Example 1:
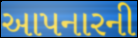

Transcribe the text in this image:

આપનારની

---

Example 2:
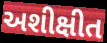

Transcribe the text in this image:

અશીક્ષીત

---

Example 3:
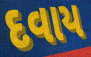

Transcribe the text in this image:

દવાય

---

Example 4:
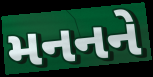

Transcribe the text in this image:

મનનને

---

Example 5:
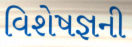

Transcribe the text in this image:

વિશેષજ્ઞની